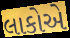
લાકોએ